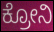
ಕ್ರೋನಿ